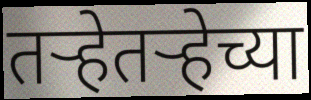
तऱ्हेतऱ्हेच्या